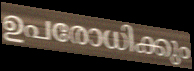
ഉപരോധിക്കും